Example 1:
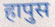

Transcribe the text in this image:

हापुस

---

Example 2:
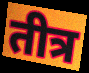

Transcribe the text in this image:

तीत्र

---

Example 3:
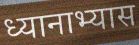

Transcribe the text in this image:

ध्यानाभ्यास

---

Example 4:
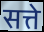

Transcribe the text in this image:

सत्ते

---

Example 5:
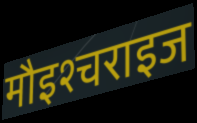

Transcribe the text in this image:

मौइश्चराइज